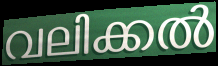
വലിക്കൽ